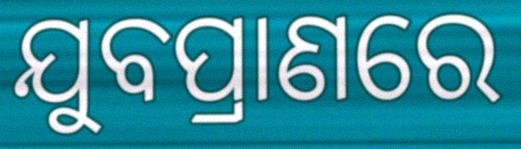
ଯୁବପ୍ରାଣରେ